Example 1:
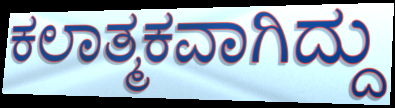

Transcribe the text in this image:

ಕಲಾತ್ಮಕವಾಗಿದ್ದು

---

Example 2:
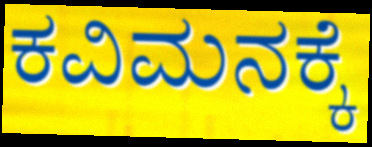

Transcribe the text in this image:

ಕವಿಮನಕ್ಕೆ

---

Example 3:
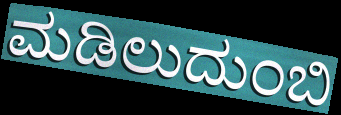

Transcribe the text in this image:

ಮಡಿಲುದುಂಬಿ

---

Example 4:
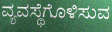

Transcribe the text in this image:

ವ್ಯವಸ್ಥೆಗೊಳಿಸುವ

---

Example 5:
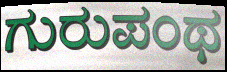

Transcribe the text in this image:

ಗುರುಪಂಥ